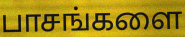
பாசங்களை